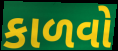
કાળવો